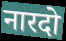
नारदो